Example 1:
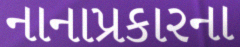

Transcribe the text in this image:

નાનાપ્રકારના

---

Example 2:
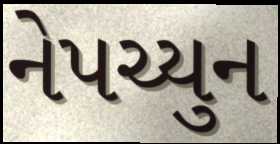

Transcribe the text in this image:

નેપચ્યુન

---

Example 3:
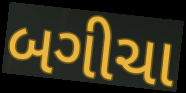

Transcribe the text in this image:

બગીચા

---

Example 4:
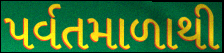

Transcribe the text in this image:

પર્વતમાળાથી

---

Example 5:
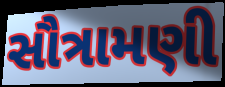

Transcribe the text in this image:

સૌત્રામણી